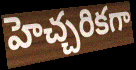
హెచ్చరికగా